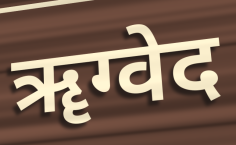
ॠग्वेद